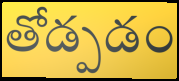
తోడ్పడం